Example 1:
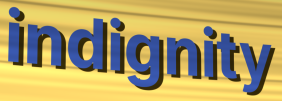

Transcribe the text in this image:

indignity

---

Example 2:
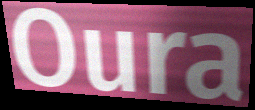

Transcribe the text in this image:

Oura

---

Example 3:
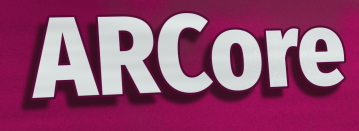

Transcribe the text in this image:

ARCore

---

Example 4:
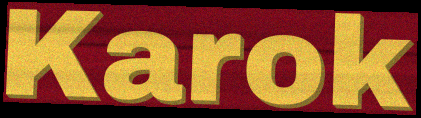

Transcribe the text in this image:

Karok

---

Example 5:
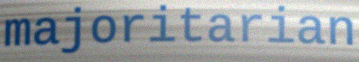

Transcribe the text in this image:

majoritarian